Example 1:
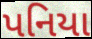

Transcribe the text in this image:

પનિયા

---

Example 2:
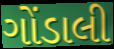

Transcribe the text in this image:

ગોંડાલી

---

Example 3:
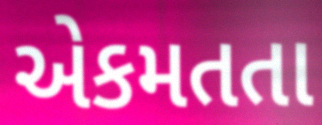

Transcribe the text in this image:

એકમતતા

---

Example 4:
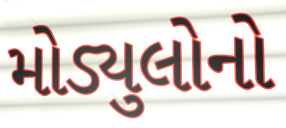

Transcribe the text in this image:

મોડ્યુલોનો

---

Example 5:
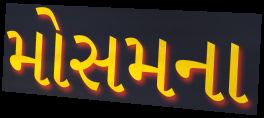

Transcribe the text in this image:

મોસમના